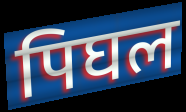
पिघल